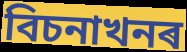
বিচনাখনৰ